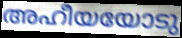
അഹീയയോടു